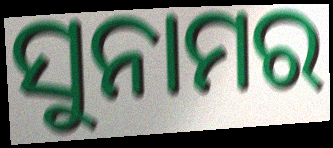
ସୁନାମର